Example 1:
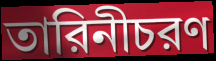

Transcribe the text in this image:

তারিনীচরণ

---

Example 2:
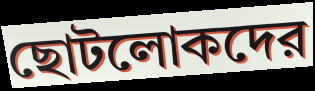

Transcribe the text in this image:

ছোটলোকদের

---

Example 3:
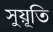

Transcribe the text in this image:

সুয়ূতি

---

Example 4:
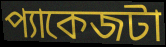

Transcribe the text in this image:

প্যাকেজটা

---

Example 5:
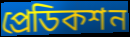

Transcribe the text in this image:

প্রেডিকশন